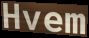
Hvem